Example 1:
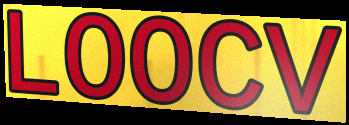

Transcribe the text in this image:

LOOCV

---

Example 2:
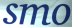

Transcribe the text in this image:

smo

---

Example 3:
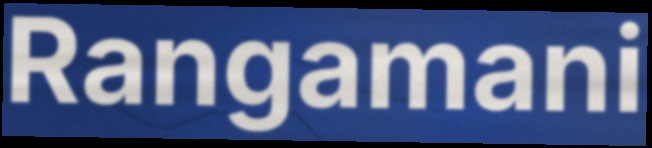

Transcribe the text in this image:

Rangamani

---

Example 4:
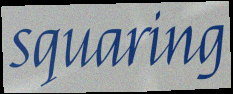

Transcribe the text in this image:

squaring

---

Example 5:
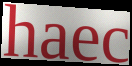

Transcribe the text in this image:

haec